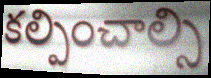
కల్పించాల్సి